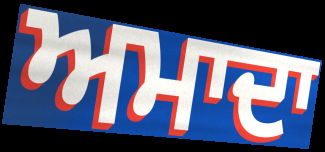
ਅਮਾਦਾ